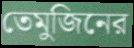
তেমুজিনের